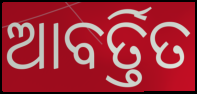
ଆବର୍ତ୍ତିତ